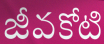
జీవకోటి